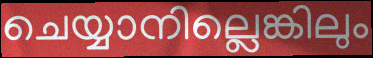
ചെയ്യാനില്ലെങ്കിലും